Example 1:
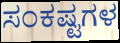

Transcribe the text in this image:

ಸಂಕಷ್ಟಗಳ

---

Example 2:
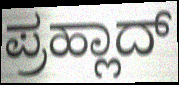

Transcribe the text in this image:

ಪ್ರಹ್ಲಾದ್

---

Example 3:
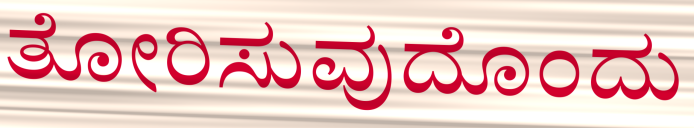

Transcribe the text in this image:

ತೋರಿಸುವುದೊಂದು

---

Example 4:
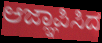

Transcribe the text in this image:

ಆಜ್ಞಾಪಿಸಿದ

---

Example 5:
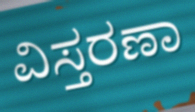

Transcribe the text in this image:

ವಿಸ್ತರಣಾ